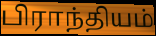
பிராந்தியம்